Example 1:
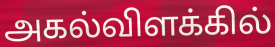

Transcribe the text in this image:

அகல்விளக்கில்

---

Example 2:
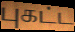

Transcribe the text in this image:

புகட்ட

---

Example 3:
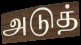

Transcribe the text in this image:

அடுத்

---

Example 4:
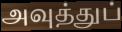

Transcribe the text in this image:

அவுத்துப்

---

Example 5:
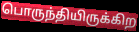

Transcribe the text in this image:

பொருந்தியிருக்கிற